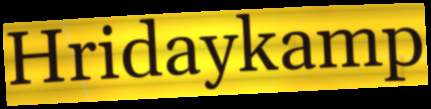
Hridaykamp